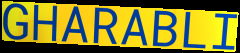
GHARABLI